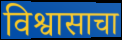
विश्वासाचा